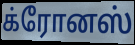
க்ரோனஸ்